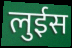
लुईस